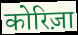
कोरिज़ा